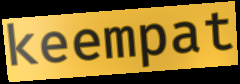
keempat